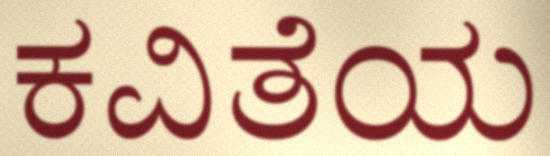
ಕವಿತೆಯ